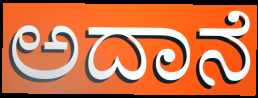
ಅದಾನೆ